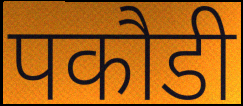
पकौडी